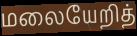
மலையேறித்